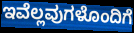
ಇವೆಲ್ಲವುಗಳೊಂದಿಗೆ